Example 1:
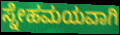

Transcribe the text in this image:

ಸ್ನೇಹಮಯವಾಗಿ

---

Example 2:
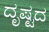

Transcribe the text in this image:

ದೃಷ್ಟದ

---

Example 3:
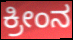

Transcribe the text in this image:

ಕ್ರೀಂನ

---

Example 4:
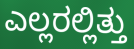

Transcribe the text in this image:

ಎಲ್ಲರಲ್ಲಿತ್ತು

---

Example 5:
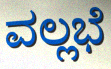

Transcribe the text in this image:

ವಲ್ಲಭೆ